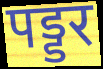
पड्डर